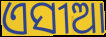
ଏସୀଆ